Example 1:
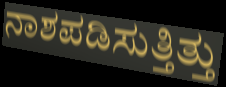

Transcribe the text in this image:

ನಾಶಪಡಿಸುತ್ತಿತ್ತು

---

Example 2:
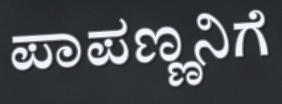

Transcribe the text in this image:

ಪಾಪಣ್ಣನಿಗೆ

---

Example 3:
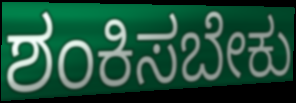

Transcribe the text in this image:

ಶಂಕಿಸಬೇಕು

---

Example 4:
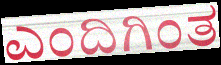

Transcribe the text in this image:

ಎಂದಿಗಿಂತ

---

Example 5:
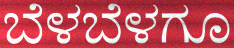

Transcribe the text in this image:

ಬೆಳಬೆಳಗೂ